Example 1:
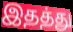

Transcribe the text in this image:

இதத்து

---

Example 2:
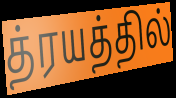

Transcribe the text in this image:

த்ரயத்தில்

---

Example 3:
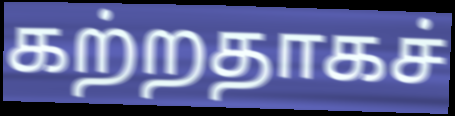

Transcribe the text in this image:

கற்றதாகச்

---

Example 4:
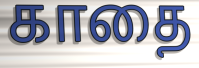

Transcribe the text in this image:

காதை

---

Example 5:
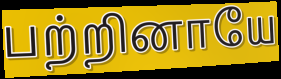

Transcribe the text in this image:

பற்றினாயே